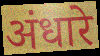
अंधारे